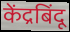
केंद्रबिंदू